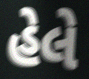
હેલે